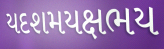
યદશમયક્ષભય